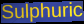
Sulphuric